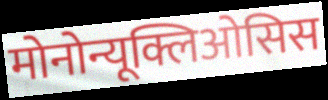
मोनोन्यूक्लिओसिस